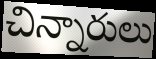
చిన్నారులు